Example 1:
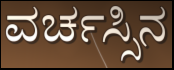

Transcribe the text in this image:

ವರ್ಚಸ್ಸಿನ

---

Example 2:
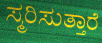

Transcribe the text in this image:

ಸ್ಮರಿಸುತ್ತಾರೆ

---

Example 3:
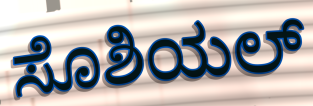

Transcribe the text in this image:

ಸೊಶಿಯಲ್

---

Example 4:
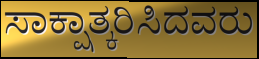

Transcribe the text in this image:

ಸಾಕ್ಷಾತ್ಕರಿಸಿದವರು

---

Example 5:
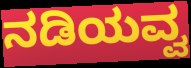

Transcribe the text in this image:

ನಡಿಯವ್ವ